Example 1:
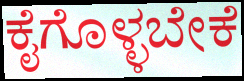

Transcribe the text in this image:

ಕೈಗೊಳ್ಳಬೇಕೆ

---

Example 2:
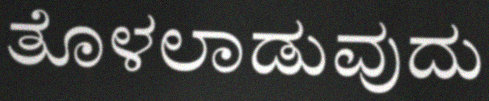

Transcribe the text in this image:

ತೊಳಲಾಡುವುದು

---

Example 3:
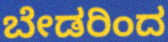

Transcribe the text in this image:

ಬೇಡರಿಂದ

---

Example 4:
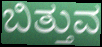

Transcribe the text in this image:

ಬಿತ್ತುವ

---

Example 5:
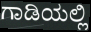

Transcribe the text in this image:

ಗಾಡಿಯಲ್ಲಿ